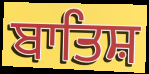
ਬਾਤਿਸ਼